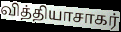
வித்தியாசாகர்